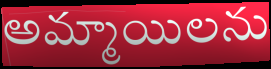
అమ్మాయిలను